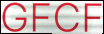
GFCF